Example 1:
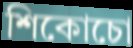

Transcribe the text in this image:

শিকোচো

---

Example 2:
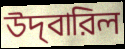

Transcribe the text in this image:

উদ্‌বারিল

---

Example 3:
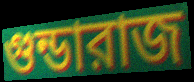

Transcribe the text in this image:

গুন্ডারাজ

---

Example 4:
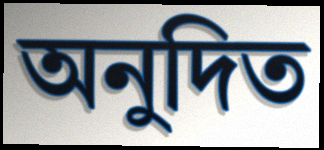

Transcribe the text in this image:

অনুদিত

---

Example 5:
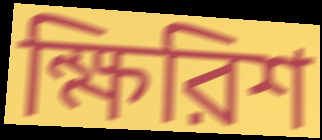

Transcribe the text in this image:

ক্ষিরিশ